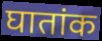
घातांक